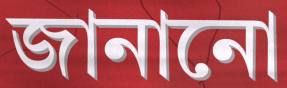
জানানো